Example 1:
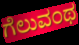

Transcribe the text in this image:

ಗೆಲುವಂಥ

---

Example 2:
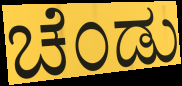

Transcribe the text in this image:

ಚೆಂಡು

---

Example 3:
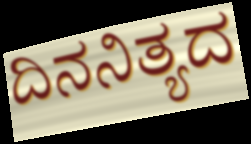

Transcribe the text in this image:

ದಿನನಿತ್ಯದ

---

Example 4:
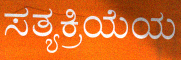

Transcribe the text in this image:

ಸತ್ಯಕ್ರಿಯೆಯ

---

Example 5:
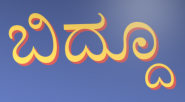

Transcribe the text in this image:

ಬಿದ್ದೂ